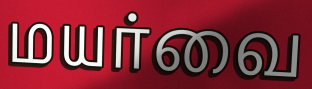
மயர்வை